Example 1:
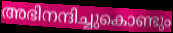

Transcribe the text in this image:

അഭിനന്ദിച്ചുകൊണ്ടും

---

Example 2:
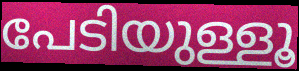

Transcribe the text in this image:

പേടിയുള്ളൂ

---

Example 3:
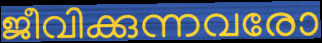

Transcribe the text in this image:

ജീവിക്കുന്നവരോ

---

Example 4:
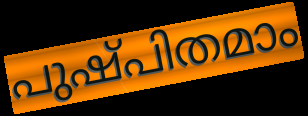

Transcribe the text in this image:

പുഷ്പിതമാം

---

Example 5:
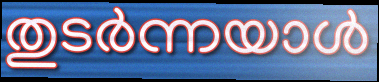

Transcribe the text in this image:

തുടർന്നയാൾ